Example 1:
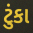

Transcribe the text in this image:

ટુંકા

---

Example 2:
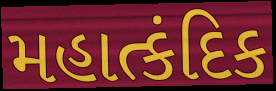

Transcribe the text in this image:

મહાત્કંદિક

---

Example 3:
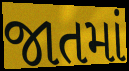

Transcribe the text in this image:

જાતમાં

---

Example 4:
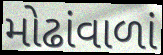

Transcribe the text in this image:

મોઢાંવાળાં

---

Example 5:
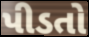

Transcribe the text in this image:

પીડતો